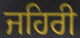
ਜਹਿਰੀ